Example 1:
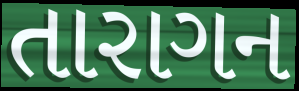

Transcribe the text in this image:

તારાગન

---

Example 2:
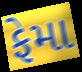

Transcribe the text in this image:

ફેમા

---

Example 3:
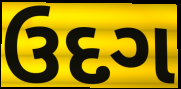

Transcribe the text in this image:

ઉદગ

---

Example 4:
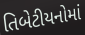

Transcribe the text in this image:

તિબેટીયનોમાં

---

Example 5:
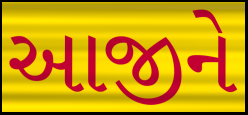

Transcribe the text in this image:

આજીને